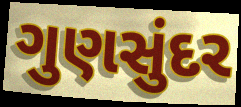
ગુણસુંદર